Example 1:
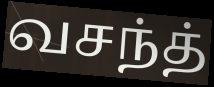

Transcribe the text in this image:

வசந்த்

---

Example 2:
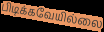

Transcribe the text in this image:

பிடிக்கவேயில்லை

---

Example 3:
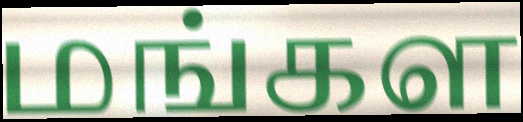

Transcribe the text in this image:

மங்கள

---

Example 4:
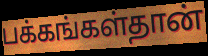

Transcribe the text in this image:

பக்கங்கள்தான்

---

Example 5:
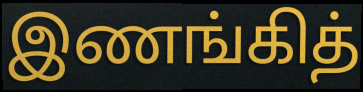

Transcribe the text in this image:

இணங்கித்